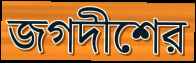
জগদীশের